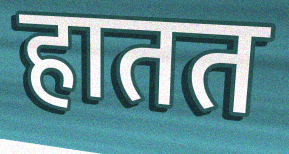
हातत